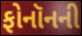
ફોનૉનની